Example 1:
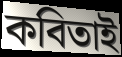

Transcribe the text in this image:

কবিতাই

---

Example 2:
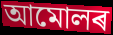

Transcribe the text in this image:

আমোলৰ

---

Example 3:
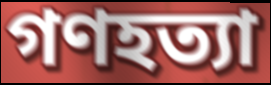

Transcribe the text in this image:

গণহত্যা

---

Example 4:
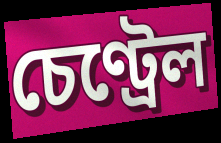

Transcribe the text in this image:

চেণ্ট্ৰেল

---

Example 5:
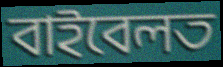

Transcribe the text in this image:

বাইবেলত